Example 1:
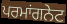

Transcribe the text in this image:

ਪਰਮਾਂਗਨੇਟ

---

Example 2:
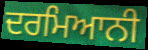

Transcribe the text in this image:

ਦਰਮਿਆਨੀ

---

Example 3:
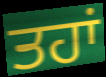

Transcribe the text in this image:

ਤਹਾਂ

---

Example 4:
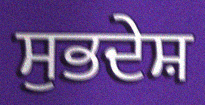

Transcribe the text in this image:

ਸੁਭਦੇਸ਼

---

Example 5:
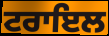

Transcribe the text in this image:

ਟਰਾਇਲ